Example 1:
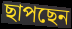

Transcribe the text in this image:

ছাপছেন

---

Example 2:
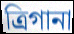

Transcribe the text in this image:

ত্রিগানা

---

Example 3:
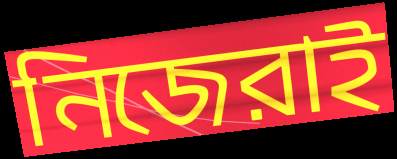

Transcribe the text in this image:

নিজেরাই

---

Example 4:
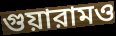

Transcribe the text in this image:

গুয়ারামও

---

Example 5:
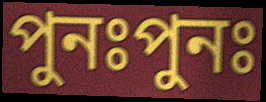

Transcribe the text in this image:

পুনঃপুনঃ